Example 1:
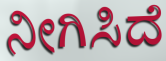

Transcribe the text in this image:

ನೀಗಿಸಿದೆ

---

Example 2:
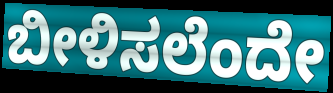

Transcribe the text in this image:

ಬೀಳಿಸಲೆಂದೇ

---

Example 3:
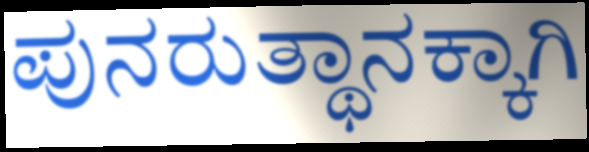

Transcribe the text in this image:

ಪುನರುತ್ಥಾನಕ್ಕಾಗಿ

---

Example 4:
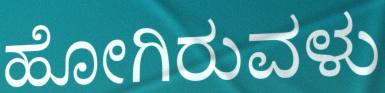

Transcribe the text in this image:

ಹೋಗಿರುವಳು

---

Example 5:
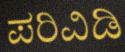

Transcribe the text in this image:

ಪರಿವಿಡಿ